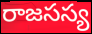
రాజసస్య